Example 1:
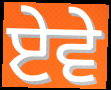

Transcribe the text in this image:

ਏਵੇ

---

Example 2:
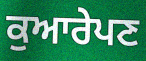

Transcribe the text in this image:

ਕੁਆਰੇਪਣ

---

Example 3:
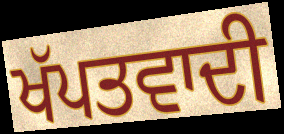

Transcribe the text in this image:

ਖੱਪਤਵਾਦੀ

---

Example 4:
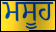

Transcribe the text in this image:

ਮਸੂਹ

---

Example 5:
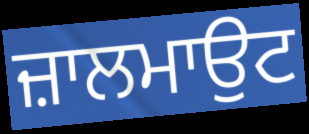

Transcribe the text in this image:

ਜ਼ਾਲਮਾਉਟ